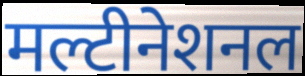
मल्टीनेशनल